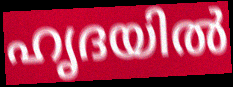
ഹൃദയിൽ